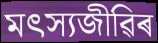
মৎস্যজীৱিৰ